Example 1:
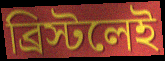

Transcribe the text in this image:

ব্রিস্টলেই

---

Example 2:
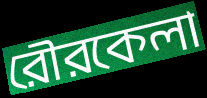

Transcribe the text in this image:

রৌরকেলা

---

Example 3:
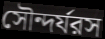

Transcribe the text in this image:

সৌন্দর্যরস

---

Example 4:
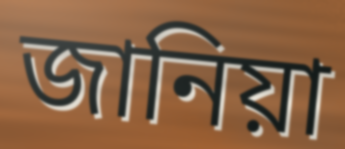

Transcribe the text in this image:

জানিয়া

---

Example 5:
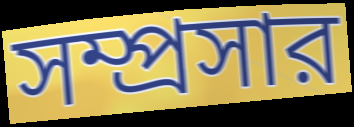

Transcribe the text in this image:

সম্প্রসার